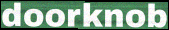
doorknob